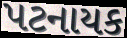
પટનાયક